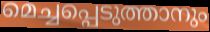
മെച്ചപ്പെടുത്താനും